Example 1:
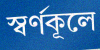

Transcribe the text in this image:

স্বর্ণকূলে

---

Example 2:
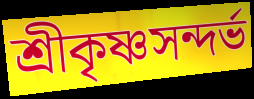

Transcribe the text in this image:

শ্রীকৃষ্ণসন্দর্ভ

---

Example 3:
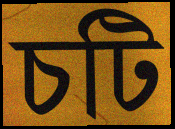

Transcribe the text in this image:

চটি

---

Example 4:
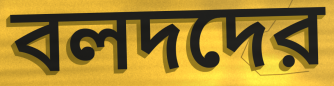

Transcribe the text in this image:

বলদদের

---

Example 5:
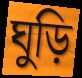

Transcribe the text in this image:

ঘুড়ি